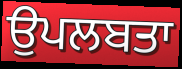
ਉਪਲਬਤਾ